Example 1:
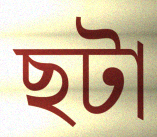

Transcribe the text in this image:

ছটা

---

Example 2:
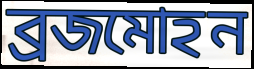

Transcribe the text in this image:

ব্ৰজমোহন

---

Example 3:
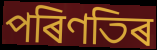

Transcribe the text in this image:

পৰিণতিৰ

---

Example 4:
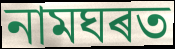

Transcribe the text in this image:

নামঘৰত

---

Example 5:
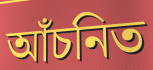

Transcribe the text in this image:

আঁচনিত